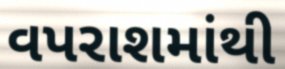
વપરાશમાંથી